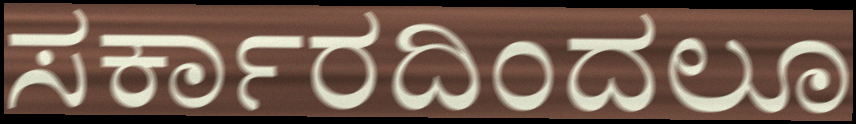
ಸರ್ಕಾರದಿಂದಲೂ